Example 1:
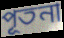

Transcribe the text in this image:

পূতনা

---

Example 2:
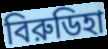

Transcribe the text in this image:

বিরুডিহা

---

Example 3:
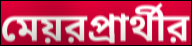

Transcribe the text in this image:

মেয়রপ্রার্থীর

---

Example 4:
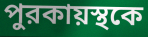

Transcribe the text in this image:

পুরকায়স্থকে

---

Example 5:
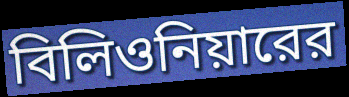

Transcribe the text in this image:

বিলিওনিয়ারের